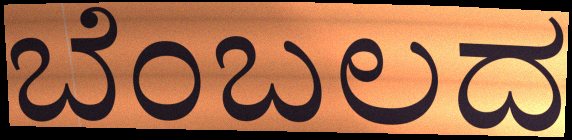
ಬೆಂಬಲದ